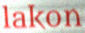
lakon